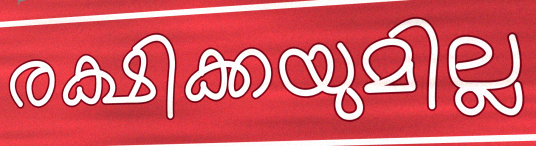
രക്ഷിക്കയുമില്ല